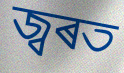
জ্বৰত